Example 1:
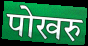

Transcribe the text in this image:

पोखरु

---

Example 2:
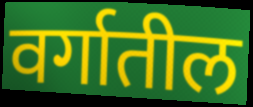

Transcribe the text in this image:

वर्गातील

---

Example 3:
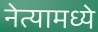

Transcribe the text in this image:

नेत्यामध्ये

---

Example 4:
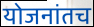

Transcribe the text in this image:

योजनांतच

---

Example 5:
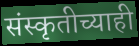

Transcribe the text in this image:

संस्कृतीच्याही